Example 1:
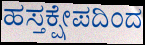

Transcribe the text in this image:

ಹಸ್ತಕ್ಷೇಪದಿಂದ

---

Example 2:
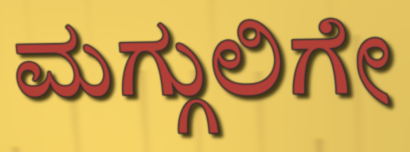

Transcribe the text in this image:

ಮಗ್ಗುಲಿಗೇ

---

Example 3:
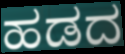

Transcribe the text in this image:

ಹಡದ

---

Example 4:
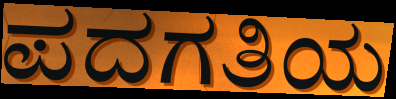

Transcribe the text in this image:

ಪದಗತಿಯ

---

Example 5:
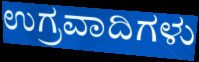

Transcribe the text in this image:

ಉಗ್ರವಾದಿಗಳು